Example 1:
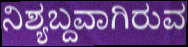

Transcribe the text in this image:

ನಿಶ್ಯಬ್ದವಾಗಿರುವ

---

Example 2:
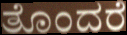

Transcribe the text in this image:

ತೊಂದರೆ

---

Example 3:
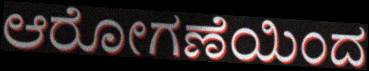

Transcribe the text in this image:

ಆರೋಗಣೆಯಿಂದ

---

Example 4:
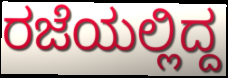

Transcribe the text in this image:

ರಜೆಯಲ್ಲಿದ್ದ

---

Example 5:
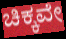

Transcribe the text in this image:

ಚಿಕ್ಕವೇ